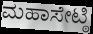
ಮಹಾಸೇಟ್ಠಿ